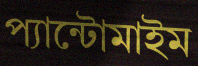
প্যান্টোমাইম